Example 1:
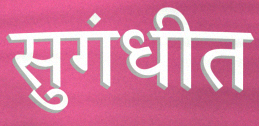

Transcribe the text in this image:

सुगंधीत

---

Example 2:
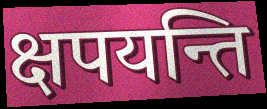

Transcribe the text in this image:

क्षपयन्ति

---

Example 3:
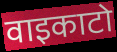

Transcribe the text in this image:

वाइकाटो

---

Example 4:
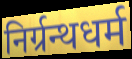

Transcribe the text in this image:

निर्ग्रन्थधर्म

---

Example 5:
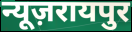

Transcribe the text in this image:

न्यूज़रायपुर